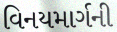
વિનયમાર્ગની